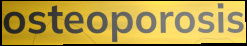
osteoporosis